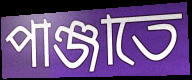
পাঞ্জাতে